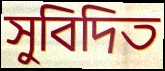
সুবিদিত